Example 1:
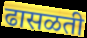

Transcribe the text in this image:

ढासळती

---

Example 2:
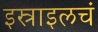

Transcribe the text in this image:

इस्राइलचं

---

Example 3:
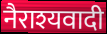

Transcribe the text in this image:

नैराश्यवादी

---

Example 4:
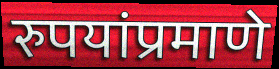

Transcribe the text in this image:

रुपयांप्रमाणे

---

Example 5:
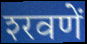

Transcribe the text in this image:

श्रवणें